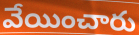
వేయించారు